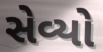
સેવ્યો